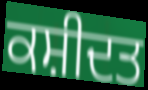
ਕਸ਼ੀਦਤ